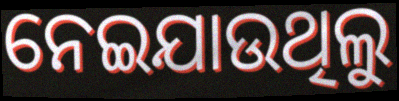
ନେଇଯାଉଥିଲୁ